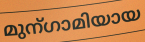
മുന്ഗാമിയായ